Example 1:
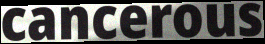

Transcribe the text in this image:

cancerous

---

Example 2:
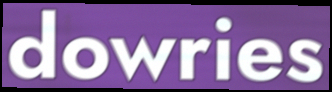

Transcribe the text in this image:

dowries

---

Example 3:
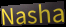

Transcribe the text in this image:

Nasha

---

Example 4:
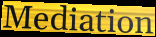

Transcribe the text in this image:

Mediation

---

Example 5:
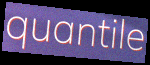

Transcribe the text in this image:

quantile